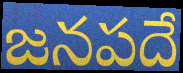
జనపదే